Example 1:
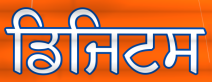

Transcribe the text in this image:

ਡਿਜਿਟਸ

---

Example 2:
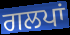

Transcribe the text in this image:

ਗਲਪਾਂ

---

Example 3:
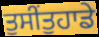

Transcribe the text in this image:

ਤੁਸੀਂਤੁਹਾਡੇ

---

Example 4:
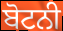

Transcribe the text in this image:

ਬੋਟਨੀ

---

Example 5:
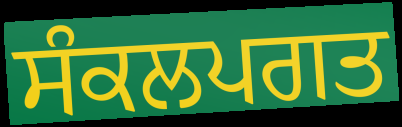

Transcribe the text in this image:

ਸੰਕਲਪਗਤ